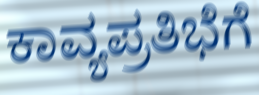
ಕಾವ್ಯಪ್ರತಿಭೆಗೆ